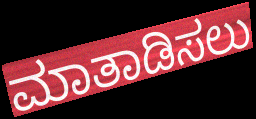
ಮಾತಾಡಿಸಲು